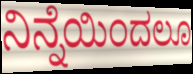
ನಿನ್ನೆಯಿಂದಲೂ